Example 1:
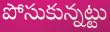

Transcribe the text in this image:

పోసుకున్నట్టు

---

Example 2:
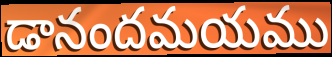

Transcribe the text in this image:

డానందమయము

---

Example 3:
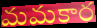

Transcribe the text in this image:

మమకార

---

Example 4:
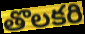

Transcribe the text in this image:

తొలకరి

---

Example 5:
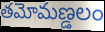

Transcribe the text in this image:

తమోమణ్డలం